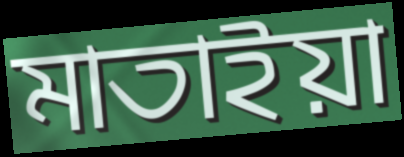
মাতাইয়া